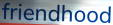
friendhood